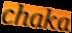
chaka